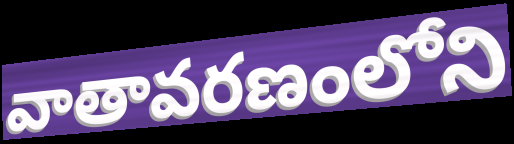
వాతావరణంలోని